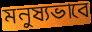
মনুষ্যভাবে